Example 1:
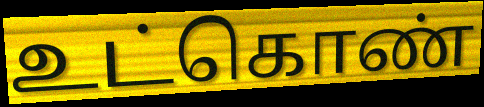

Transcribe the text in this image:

உட்கொண்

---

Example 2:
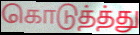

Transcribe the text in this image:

கொடுத்த்து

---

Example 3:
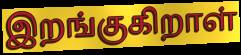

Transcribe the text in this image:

இறங்குகிறாள்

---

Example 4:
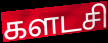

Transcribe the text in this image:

களடசி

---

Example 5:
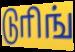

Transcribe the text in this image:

டுரிங்